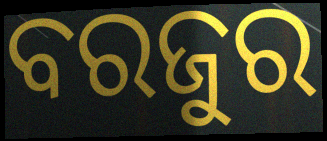
ବରଜୁର